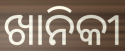
ଖାନିକୀ